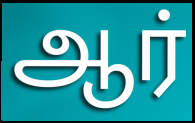
ஆர்